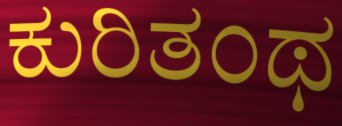
ಕುರಿತಂಥ